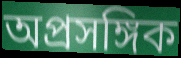
অপ্রসঙ্গিক